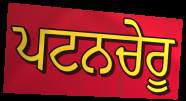
ਪਟਨਚੇਰੂ